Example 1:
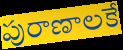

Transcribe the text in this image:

పురాణాలకే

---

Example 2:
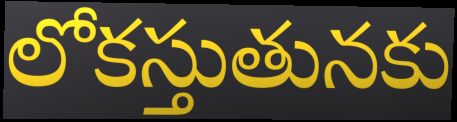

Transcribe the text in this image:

లోకస్తుతునకు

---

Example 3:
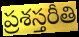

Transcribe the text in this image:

ప్రశస్తరీతి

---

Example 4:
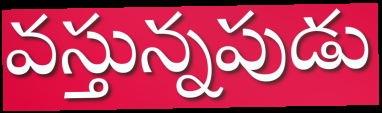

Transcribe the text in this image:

వస్తున్నపుడు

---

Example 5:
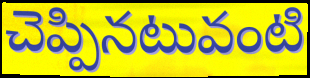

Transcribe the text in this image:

చెప్పినటువంటి